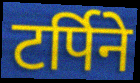
टर्पिने